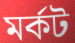
মর্কট